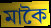
মাকৈ